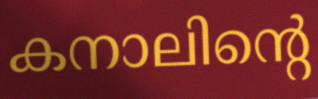
കനാലിന്റെ